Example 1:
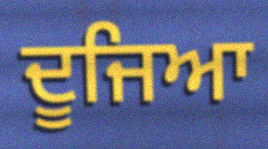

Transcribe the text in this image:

ਦੂਜਿਆ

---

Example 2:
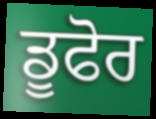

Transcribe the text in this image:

ਡੂਫੋਰ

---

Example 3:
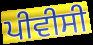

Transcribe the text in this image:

ਪੀਵੀਸੀ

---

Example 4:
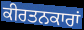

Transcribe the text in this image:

ਕੀਰਤਨਕਾਰਾਂ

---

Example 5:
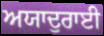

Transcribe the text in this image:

ਅਯਾਦੁਰਾਈ